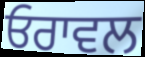
ਓਰਾਵਲ